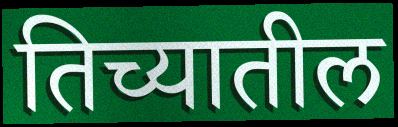
तिच्यातील